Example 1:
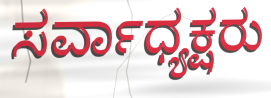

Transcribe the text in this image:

ಸರ್ವಾಧ್ಯಕ್ಷರು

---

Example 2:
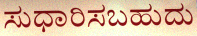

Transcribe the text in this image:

ಸುಧಾರಿಸಬಹುದು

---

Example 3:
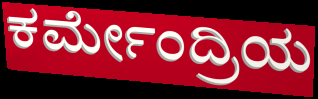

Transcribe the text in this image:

ಕರ್ಮೇಂದ್ರಿಯ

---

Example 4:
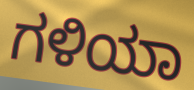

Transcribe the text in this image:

ಗಳಿಯಾ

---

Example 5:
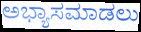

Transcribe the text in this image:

ಅಭ್ಯಾಸಮಾಡಲು